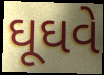
ઘૂઘવે